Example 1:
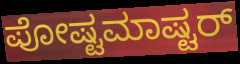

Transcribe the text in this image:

ಪೋಷ್ಟಮಾಷ್ಟರ್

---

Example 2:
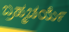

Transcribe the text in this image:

ಬ್ರಹ್ಮಚರ್ಯೆ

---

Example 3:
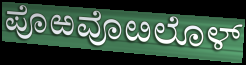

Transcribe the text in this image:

ಪೊಱವೊೞಲೊಳ್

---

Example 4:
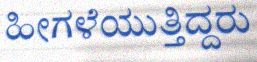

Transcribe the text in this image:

ಹೀಗಳೆಯುತ್ತಿದ್ದರು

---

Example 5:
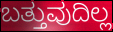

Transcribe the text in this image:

ಬತ್ತುವುದಿಲ್ಲ